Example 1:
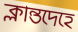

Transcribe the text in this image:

ক্লান্তদেহে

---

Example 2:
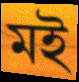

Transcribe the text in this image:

মই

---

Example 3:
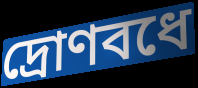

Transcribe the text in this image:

দ্রোণবধে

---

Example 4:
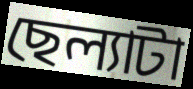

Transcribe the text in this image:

ছেল্যাটা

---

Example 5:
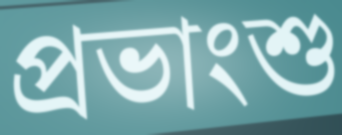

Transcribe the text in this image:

প্রভাংশু